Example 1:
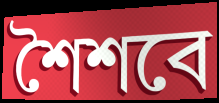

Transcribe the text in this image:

শৈশবে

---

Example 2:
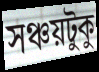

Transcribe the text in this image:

সঞ্চয়টুকু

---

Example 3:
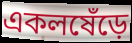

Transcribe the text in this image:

একলষেঁড়ে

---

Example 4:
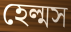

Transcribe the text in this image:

হেল্মস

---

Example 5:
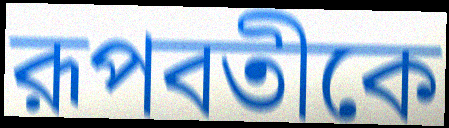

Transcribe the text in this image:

রূপবতীকে